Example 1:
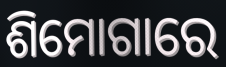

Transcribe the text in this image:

ଶିମୋଗାରେ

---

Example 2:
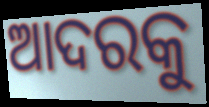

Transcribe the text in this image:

ଆଦରକୁ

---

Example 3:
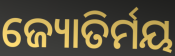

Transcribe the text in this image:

ଜ୍ୟୋତିର୍ମୟ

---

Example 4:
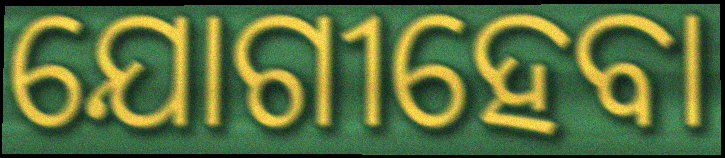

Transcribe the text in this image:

ଯୋଗୀହେବା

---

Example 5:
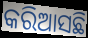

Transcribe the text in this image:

କରିଆସଛି